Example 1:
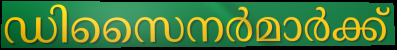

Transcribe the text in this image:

ഡിസൈനർമാർക്ക്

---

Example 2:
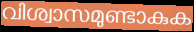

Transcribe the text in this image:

വിശ്വാസമുണ്ടാകുക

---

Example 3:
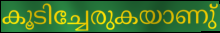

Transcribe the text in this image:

കൂടിച്ചേരുകയാണു്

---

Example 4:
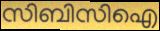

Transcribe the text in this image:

സിബിസിഐ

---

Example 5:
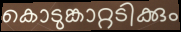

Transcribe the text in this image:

കൊടുങ്കാറ്റടിക്കും